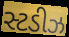
સ્ટડીઝ